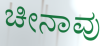
ಚೀನಾವು